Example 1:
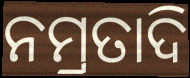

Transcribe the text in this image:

ନମ୍ରତାଦି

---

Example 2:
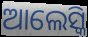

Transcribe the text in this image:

ଆଲେସ୍କି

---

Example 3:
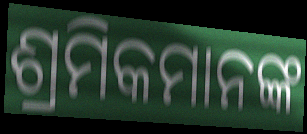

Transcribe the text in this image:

ଶ୍ରମିକମାନଙ୍କ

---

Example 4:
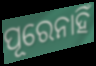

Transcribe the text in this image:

ପୂରେନାହିଁ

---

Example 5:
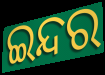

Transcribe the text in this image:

ଇନ୍ଦର